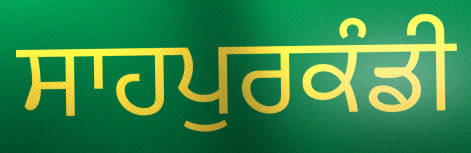
ਸਾਹਪੁਰਕੰਡੀ